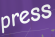
press